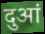
दुआं